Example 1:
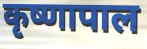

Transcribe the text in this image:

कृष्णापाल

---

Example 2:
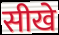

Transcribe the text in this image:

सीखे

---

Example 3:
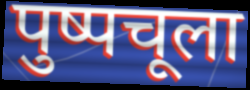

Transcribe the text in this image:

पुष्पचूला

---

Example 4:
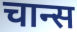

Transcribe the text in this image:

चान्स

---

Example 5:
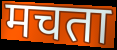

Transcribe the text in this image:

मचता